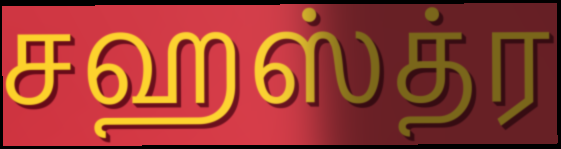
சஹஸ்த்ர